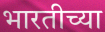
भारतीच्‍या